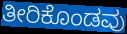
ತೀರಿಕೊಂಡವು